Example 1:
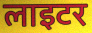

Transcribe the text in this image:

लाइटर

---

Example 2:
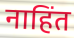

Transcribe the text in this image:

नाहिंत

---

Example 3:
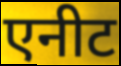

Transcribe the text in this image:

एनीट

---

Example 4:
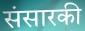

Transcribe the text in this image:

संसारकी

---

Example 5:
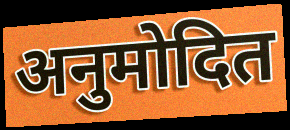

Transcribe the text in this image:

अनुमोदित